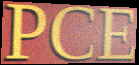
PCE